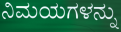
ನಿಮಯಗಳನ್ನು